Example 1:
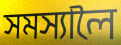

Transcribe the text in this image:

সমস্যালৈ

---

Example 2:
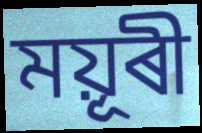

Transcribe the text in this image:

ময়ূৰী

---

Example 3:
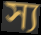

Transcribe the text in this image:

স্য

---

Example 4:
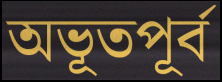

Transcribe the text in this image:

অভূতপূৰ্ব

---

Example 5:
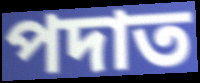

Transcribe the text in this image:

পদাত